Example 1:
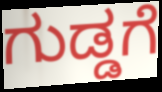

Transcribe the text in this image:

ಗುಡ್ಡಗೆ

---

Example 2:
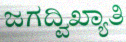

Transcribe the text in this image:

ಜಗದ್ವಿಖ್ಯಾತಿ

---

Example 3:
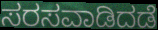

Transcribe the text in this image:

ಸರಸವಾಡಿದಡೆ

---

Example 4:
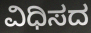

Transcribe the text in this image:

ವಿಧಿಸದ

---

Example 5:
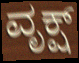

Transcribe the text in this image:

ವೃಕ್ಷ್